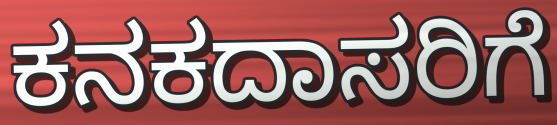
ಕನಕದಾಸರಿಗೆ